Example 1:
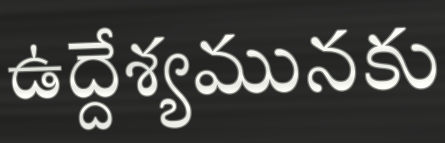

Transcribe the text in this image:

ఉద్దేశ్యమునకు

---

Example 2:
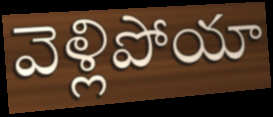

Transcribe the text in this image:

వెళ్లిపోయా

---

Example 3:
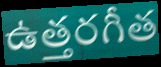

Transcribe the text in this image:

ఉత్తరగీత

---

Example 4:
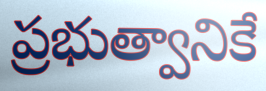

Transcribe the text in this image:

ప్రభుత్వానికే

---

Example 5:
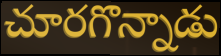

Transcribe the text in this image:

చూరగొన్నాడు